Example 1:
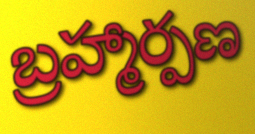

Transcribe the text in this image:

బ్రహ్మార్పణ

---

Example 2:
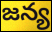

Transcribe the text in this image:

జన్య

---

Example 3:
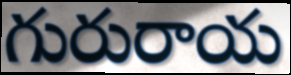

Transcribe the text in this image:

గురురాయ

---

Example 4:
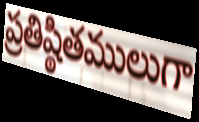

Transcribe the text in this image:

ప్రతిష్ఠితములుగా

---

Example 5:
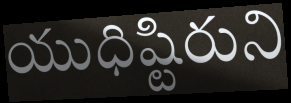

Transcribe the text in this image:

యుధిష్టిరుని